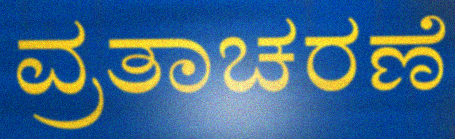
ವ್ರತಾಚರಣೆ